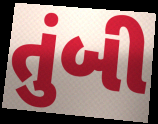
તુંબી